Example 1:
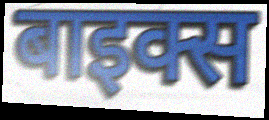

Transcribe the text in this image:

बाइक्स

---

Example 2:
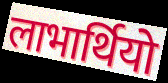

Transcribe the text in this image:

लाभार्थियो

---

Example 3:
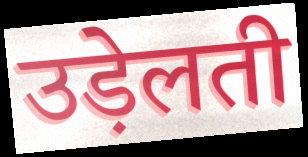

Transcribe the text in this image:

उड़ेलती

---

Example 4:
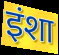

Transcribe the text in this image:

इंशा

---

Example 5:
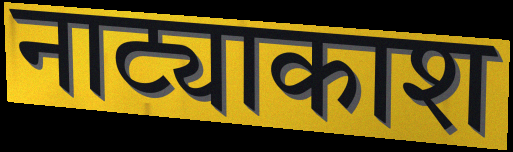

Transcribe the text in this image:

नाट्याकाश